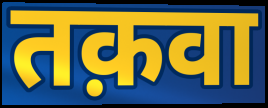
तक़वा